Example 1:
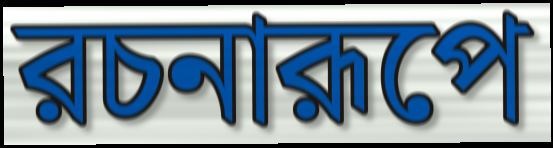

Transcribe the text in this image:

রচনারূপে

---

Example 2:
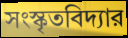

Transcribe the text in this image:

সংস্কৃতবিদ্যার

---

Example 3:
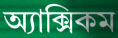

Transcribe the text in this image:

অ্যাক্সিকম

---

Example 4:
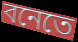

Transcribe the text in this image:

বনেতে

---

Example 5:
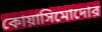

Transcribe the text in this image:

কোয়াসিমোদোর